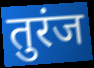
तुरंज